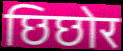
छिछोर